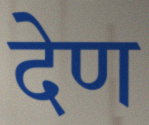
देण